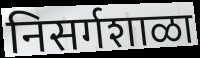
निसर्गशाळा